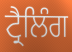
ਟ੍ਰੈਲਿੰਗ